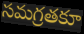
సమగ్రతకూ